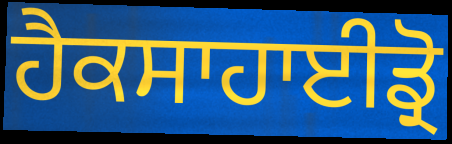
ਹੈਕਸਾਹਾਈਡ੍ਰੋ